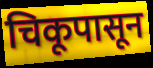
चिकूपासून